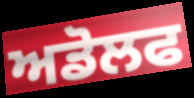
ਅਡੋਲਫ